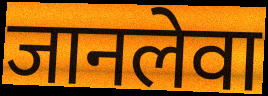
जानलेवा